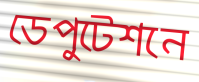
ডেপুটেশনে